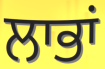
ਲਾਭਾਂ